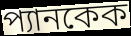
প্যানকেক